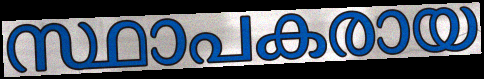
സ്ഥാപകരായ